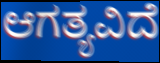
ಆಗತ್ಯವಿದೆ